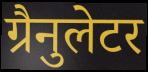
ग्रैनुलेटर